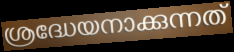
ശ്രദ്ധേയനാക്കുന്നത്